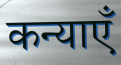
कन्याएँ